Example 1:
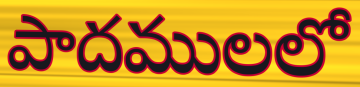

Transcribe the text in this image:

పాదములలో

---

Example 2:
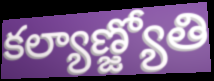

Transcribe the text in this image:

కల్యాణ్జ్యోతి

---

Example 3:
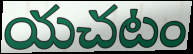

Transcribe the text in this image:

యచటం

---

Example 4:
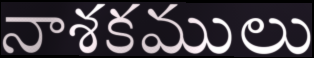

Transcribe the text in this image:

నాశకములు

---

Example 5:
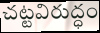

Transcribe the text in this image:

చట్టవిరుద్ధం